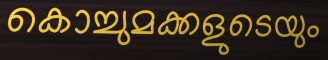
കൊച്ചുമക്കളുടെയും